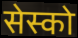
सेस्को